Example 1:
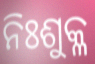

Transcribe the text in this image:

ନିଃଶୁକ୍ଳ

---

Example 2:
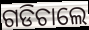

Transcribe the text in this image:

ଗଡିଚାଲେ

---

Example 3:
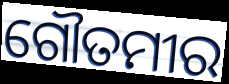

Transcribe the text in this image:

ଗୌତମୀର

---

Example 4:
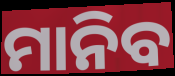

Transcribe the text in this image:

ମାନିବ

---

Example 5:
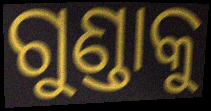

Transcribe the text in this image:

ଗୁଣ୍ଡାକୁ